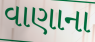
વાણાના